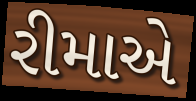
રીમાએ